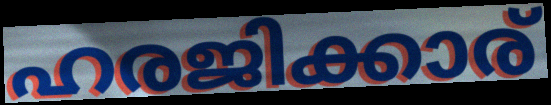
ഹരജിക്കാര്